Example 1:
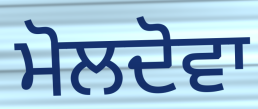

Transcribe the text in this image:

ਮੋਲਦੋਵਾ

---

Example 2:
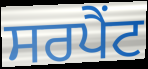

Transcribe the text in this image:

ਸਰਪੈਂਟ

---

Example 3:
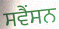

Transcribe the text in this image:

ਸਵੈਂਸਨ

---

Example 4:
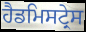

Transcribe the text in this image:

ਹੈਡਮਿਸਟ੍ਰੇਸ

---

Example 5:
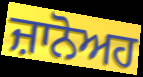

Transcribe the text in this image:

ਜ਼ਾਨੋਅਹ